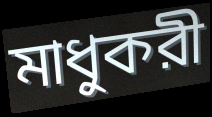
মাধুকরী